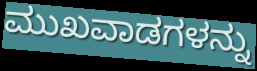
ಮುಖವಾಡಗಳನ್ನು